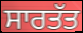
ਸਾਰਤੱਤ